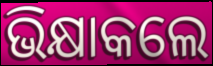
ଭିକ୍ଷାକଲେ